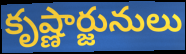
కృష్ణార్జునులు